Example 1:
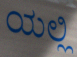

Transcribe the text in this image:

ಯಲ್ಲಿ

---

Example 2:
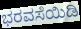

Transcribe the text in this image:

ಭರವಸೆಯಿಡಿ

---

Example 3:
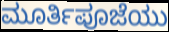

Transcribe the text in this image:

ಮೂರ್ತಿಪೂಜೆಯು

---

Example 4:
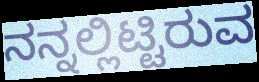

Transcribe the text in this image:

ನನ್ನಲ್ಲಿಟ್ಟಿರುವ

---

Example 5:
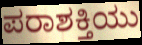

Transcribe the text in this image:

ಪರಾಶಕ್ತಿಯು